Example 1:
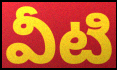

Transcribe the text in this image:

వీటి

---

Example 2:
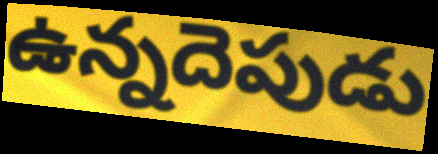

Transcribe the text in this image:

ఉన్నదెపుడు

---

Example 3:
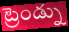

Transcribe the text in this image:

ట్రెండ్ను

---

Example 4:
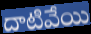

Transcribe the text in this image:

దాటివేయి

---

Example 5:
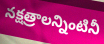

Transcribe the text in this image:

నక్షత్రాలన్నింటినీ